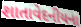
શાતાવેદનીયના